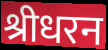
श्रीधरन